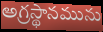
అగ్రస్థానమును